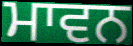
ਮਾਵਨ